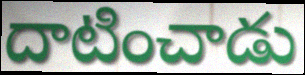
దాటించాడు